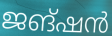
ജങ്ഷൻ